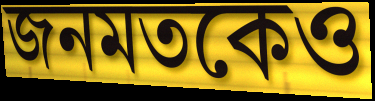
জনমতকেও